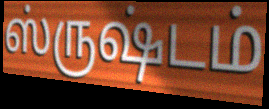
ஸ்ருஷ்டம்